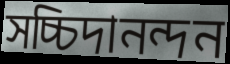
সচ্চিদানন্দন